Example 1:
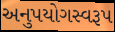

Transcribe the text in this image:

અનુપયોગસ્વરૂપ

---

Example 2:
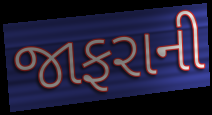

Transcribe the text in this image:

જાફરાની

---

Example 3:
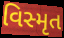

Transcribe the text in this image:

વિસ્મૃત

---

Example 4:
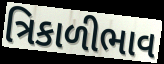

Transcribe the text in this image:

ત્રિકાળીભાવ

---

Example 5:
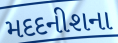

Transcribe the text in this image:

મદદનીશના